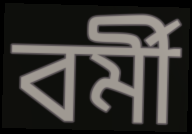
বৰ্মী